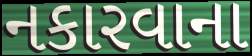
નકારવાના